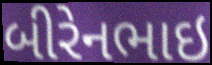
બીરેનભાઇ